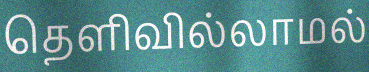
தெளிவில்லாமல்